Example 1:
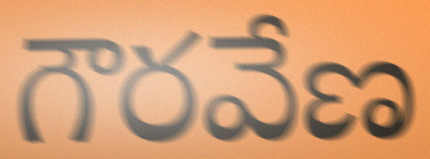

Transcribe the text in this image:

గౌరవేణ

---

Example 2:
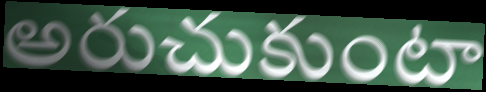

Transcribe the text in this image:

అరుచుకుంటా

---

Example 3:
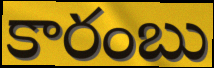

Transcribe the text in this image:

కారంబు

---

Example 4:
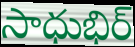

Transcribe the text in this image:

సాధుభిర్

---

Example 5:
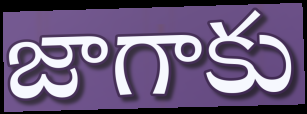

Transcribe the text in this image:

జాగాకు